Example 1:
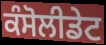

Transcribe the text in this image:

ਕੰਸੋਲੀਡੇਟ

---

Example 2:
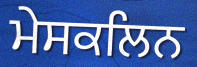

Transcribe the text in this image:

ਮੇਸਕਲਿਨ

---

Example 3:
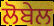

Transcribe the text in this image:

ਲੋਬੇਲ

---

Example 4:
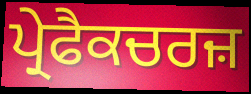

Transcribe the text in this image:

ਪ੍ਰੇਫੈਕਚਰਜ਼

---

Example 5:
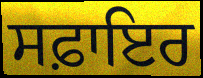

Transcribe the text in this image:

ਸਫ਼ਾਇਰ